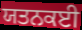
ਯਤਨਕਈ